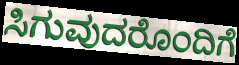
ಸಿಗುವುದರೊಂದಿಗೆ